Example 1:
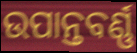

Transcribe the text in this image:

ଉପାନ୍ତବର୍ଣ୍ଣ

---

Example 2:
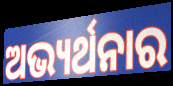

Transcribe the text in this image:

ଅଭ୍ୟର୍ଥନାର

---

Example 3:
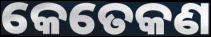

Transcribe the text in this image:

କେତେକଣ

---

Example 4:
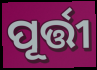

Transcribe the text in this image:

ପୂର୍ତ୍ତୀ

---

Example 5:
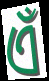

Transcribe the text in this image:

ଏଁ